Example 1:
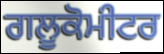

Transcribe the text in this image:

ਗਲੂਕੋਮੀਟਰ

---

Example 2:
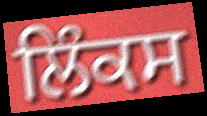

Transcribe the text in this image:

ਲਿੰਕਸ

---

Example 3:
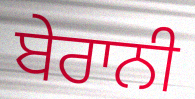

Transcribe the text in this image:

ਬੇਰਾਨੀ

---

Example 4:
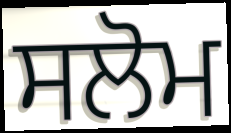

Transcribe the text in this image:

ਸਲੋਮ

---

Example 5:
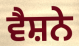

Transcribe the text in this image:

ਵੈਸ਼ਨੇ